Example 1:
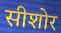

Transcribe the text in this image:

सीशोर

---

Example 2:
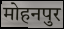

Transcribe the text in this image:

मोहनपुर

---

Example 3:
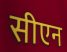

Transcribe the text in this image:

सीएन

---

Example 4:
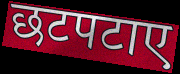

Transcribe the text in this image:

छटपटाए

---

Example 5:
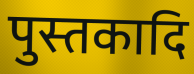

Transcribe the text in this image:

पुस्तकादि